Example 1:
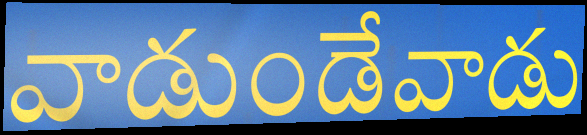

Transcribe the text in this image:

వాడుండేవాడు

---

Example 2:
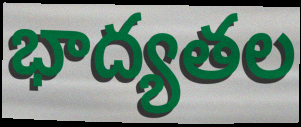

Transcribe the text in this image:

భాద్యతల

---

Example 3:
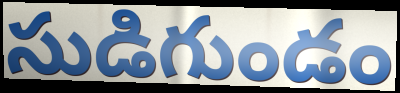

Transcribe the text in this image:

సుడిగుండం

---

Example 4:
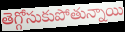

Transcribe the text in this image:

తెగ్గోసుకుపోతున్నాయి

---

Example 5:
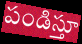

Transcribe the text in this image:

పండిస్తూ